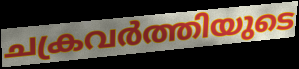
ചക്രവർത്തിയുടെ